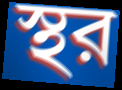
স্থর